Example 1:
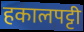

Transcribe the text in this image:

हकालपट्टी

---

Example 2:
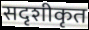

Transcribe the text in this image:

सदृशीकृत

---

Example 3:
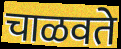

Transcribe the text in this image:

चाळवते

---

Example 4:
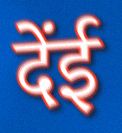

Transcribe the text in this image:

देंई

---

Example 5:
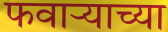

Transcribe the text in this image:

फवाऱ्याच्या